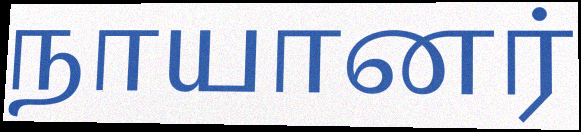
நாயானர்